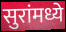
सुरांमध्ये